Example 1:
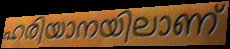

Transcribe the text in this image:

ഹരിയാനയിലാണ്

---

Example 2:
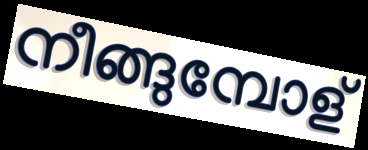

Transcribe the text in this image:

നീങ്ങുമ്പോള്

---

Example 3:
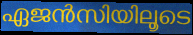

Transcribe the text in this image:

ഏജൻസിയിലൂടെ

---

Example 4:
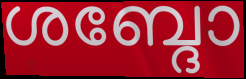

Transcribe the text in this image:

ശബ്ദോ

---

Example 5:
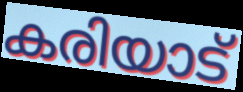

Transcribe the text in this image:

കരിയാട്